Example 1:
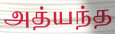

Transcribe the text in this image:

அத்யந்த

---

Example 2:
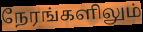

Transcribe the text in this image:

நேரங்களிலும்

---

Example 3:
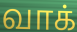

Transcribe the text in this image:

வாக்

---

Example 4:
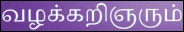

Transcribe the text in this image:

வழக்கறிஞரும்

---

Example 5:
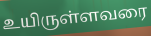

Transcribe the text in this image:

உயிருள்ளவரை